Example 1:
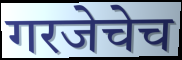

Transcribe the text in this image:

गरजेचेच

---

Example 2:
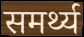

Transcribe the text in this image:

समर्थ्य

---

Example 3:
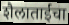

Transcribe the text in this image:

शैलाताईंचा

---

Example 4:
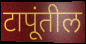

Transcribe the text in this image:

टापूंतील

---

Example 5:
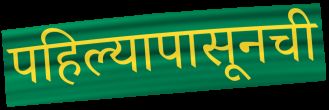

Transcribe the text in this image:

पहिल्यापासूनची